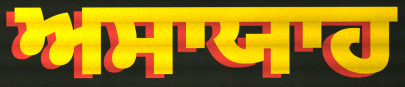
ਅਸਾਯਾਹ